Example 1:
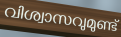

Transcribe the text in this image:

വിശ്വാസവുമുണ്ട്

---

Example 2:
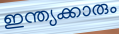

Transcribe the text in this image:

ഇന്ത്യക്കാരും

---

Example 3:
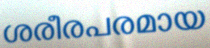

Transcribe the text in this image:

ശരീരപരമായ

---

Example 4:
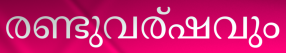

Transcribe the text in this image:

രണ്ടുവര്ഷവും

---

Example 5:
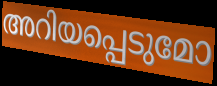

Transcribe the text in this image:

അറിയപ്പെടുമോ